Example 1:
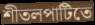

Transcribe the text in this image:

শীতলপাটিতে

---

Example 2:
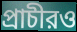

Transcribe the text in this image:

প্রাচীরও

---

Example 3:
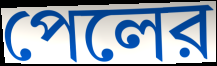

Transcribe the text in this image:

পেলের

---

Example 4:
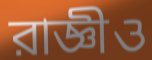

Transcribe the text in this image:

রাজ্ঞীও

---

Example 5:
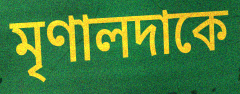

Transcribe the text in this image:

মৃণালদাকে